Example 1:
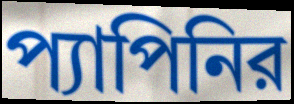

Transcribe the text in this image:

প্যাপিনির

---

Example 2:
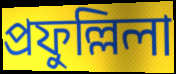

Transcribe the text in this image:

প্রফুল্লিলা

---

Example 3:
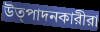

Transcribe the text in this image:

উত্পাদনকারীরা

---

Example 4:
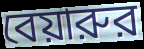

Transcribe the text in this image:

বেয়ারুর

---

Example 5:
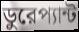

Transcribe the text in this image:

ডুরেপ্যান্ট